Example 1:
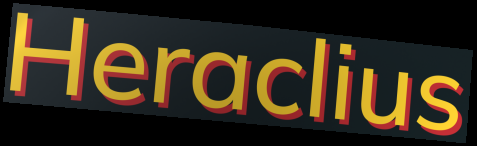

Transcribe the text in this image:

Heraclius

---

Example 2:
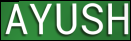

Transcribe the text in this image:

AYUSH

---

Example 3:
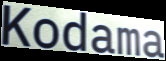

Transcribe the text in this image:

Kodama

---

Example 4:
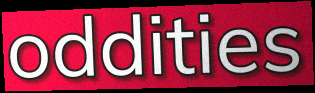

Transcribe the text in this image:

oddities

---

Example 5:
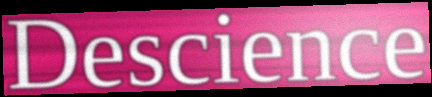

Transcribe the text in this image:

Descience